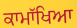
ਕਾਮਾੱਖਿਆ